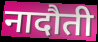
नादौती